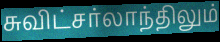
சுவிட்சர்லாந்திலும்